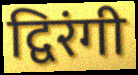
द्विरंगी